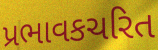
પ્રભાવકચરિત